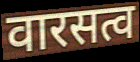
वारसत्व